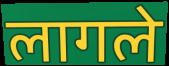
लागले